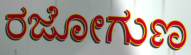
ರಜೋಗುಣ